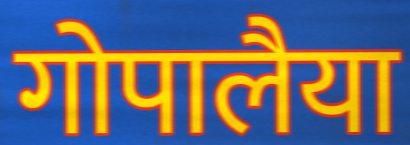
गोपालैया